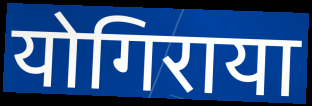
योगिराया